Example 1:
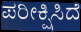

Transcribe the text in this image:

ಪರೀಕ್ಷಿಸಿದೆ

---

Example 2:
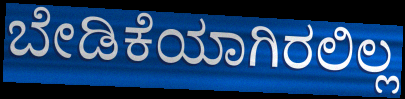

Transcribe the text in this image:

ಬೇಡಿಕೆಯಾಗಿರಲಿಲ್ಲ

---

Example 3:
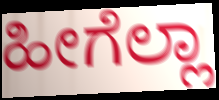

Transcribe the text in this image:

ಹೀಗೆಲ್ಲಾ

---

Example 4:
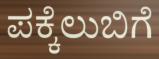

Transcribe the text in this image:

ಪಕ್ಕೆಲುಬಿಗೆ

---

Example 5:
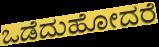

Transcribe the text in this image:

ಒಡೆದುಹೋದರೆ